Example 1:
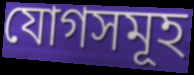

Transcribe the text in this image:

যোগসমূহ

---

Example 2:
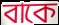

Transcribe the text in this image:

বাকে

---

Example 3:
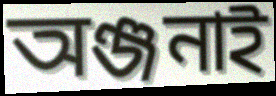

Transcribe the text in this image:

অঞ্জনাই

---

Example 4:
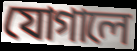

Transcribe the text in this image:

যোগালে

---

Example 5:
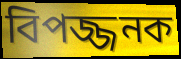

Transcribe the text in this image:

বিপজ্জনক